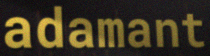
adamant